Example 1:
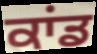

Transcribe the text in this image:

ਕਾਂਡ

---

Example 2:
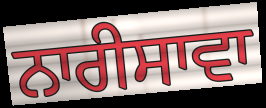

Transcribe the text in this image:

ਨਾਰੀਸਾਵਾ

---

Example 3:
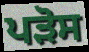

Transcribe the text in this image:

ਪੜੋਸ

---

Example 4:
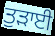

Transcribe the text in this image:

ਤੁੜਾਈ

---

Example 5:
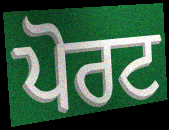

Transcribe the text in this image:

ਪੋਰਟ